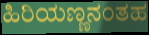
ಹಿರಿಯಣ್ಣನಂತಹ